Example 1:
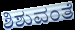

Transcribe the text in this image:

ಶಿಶುವಂತೆ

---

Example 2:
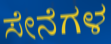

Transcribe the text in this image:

ಸೇನೆಗಳ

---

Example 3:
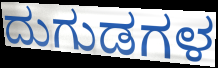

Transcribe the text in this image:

ದುಗುಡಗಳ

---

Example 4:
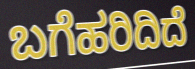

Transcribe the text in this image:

ಬಗೆಹರಿದಿದೆ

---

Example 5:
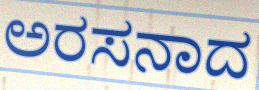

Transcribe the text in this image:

ಅರಸನಾದ